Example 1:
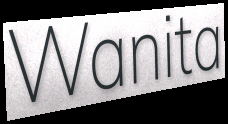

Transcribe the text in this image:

Wanita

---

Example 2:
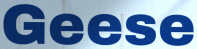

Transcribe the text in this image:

Geese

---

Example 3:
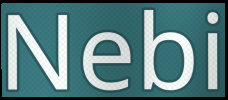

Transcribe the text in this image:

Nebi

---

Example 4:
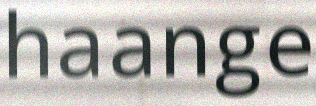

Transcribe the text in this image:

haange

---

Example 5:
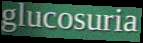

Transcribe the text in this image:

glucosuria